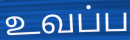
உவப்ப